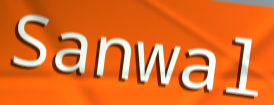
Sanwal